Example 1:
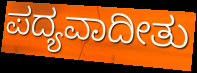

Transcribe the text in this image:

ಪದ್ಯವಾದೀತು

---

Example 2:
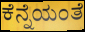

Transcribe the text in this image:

ಕೆನ್ನೆಯಂತೆ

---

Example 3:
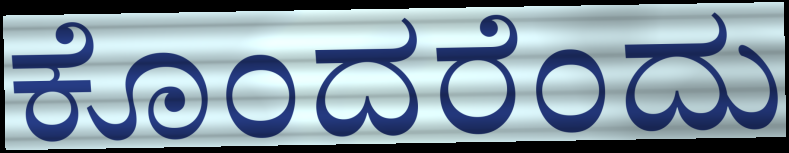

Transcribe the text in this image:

ಕೊಂದರೆಂದು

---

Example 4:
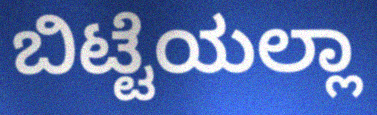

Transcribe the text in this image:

ಬಿಟ್ಟೆಯಲ್ಲಾ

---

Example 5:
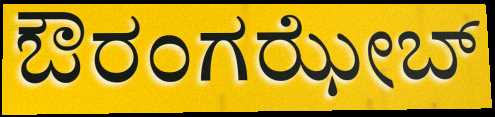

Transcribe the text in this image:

ಔರಂಗಝೇಬ್